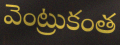
వెంట్రుకంత